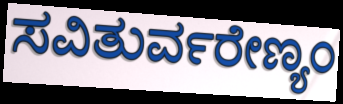
ಸವಿತುರ್ವರೇಣ್ಯಂ